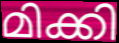
മിക്കി